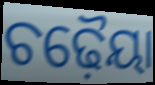
ଚଢ଼ୈୟା